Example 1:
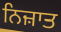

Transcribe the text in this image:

ਨਿਜ਼ਾਤ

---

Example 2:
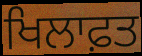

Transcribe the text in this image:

ਖਿਲਾਫ਼ਤ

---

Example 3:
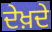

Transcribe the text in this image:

ਦੇਖ਼ਦੇ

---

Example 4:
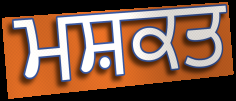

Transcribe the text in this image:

ਮਸ਼ਕਤ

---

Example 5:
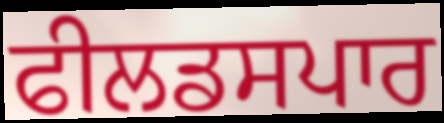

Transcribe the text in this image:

ਫੀਲਡਸਪਾਰ